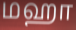
மஹா